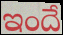
ఇందే